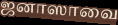
ஜனாஸாவை